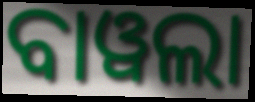
ବାୱଲା